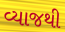
વ્યાજથી